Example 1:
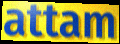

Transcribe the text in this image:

attam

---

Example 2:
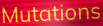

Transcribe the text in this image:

Mutations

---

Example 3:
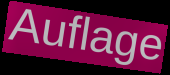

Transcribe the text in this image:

Auflage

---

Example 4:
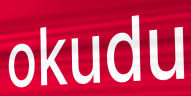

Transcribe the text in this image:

okudu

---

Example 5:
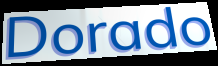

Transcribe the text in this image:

Dorado